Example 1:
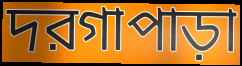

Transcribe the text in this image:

দরগাপাড়া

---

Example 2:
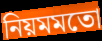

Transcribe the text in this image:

নিয়মমতো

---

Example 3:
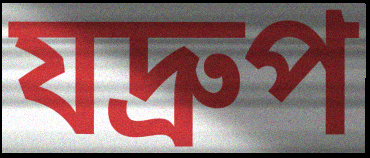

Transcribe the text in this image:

যদ্রুপ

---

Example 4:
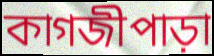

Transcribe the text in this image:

কাগজীপাড়া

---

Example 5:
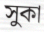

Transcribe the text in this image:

সুকা